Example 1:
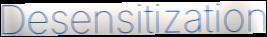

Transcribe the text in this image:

Desensitization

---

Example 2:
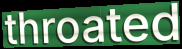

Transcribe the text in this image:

throated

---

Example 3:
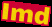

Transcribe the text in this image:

Imd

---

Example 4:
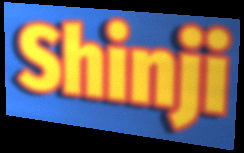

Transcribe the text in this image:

Shinji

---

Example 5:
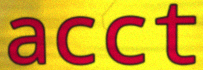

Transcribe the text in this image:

acct